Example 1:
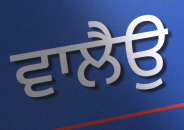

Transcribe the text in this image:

ਵਾਲੈਉ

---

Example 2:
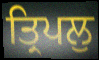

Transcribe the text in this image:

ਤ੍ਰਿਪਲੁ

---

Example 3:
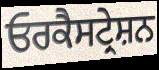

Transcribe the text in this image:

ਓਰਕੈਸਟ੍ਰੇਸ਼ਨ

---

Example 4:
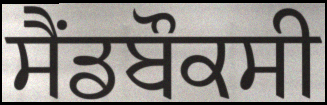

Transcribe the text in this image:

ਸੈਂਡਬੌਕਸੀ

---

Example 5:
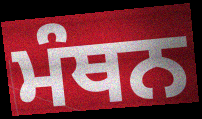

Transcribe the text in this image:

ਮੰਥਨ